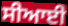
ਸੀਆਈ